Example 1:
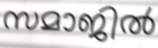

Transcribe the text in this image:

സമാജിൽ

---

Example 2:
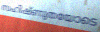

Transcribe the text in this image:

സഹിഷ്ണുതയോടെ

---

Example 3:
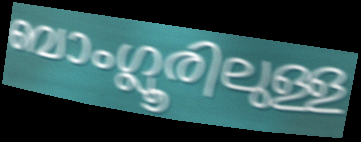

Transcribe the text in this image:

ബാംഗ്ലൂരിലുള്ള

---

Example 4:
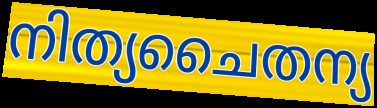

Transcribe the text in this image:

നിത്യചൈതന്യ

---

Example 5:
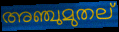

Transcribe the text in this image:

അഞ്ചുമുതല്